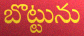
బొట్టును